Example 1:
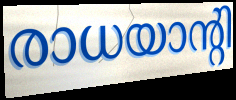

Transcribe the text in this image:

രാധയാന്റി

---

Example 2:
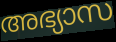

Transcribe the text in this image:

അഭ്യാസ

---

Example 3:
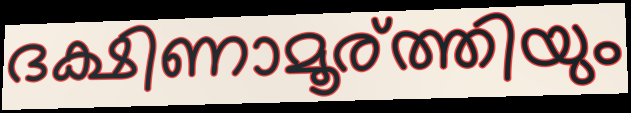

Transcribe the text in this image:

ദക്ഷിണാമൂര്ത്തിയും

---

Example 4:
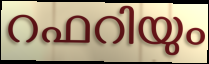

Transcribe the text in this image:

റഫറിയും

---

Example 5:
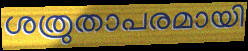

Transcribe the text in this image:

ശത്രുതാപരമായി